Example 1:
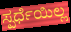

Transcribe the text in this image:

ಸ್ಪರ್ಧೆಯಿಲ್ಲ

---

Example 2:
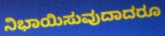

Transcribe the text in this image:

ನಿಭಾಯಿಸುವುದಾದರೂ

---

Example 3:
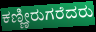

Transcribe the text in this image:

ಕಣ್ಣೀರುಗರೆದರು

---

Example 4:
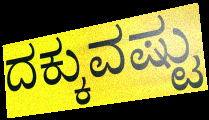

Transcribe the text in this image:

ದಕ್ಕುವಷ್ಟು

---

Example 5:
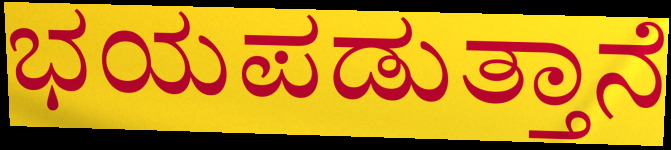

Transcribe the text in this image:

ಭಯಪಡುತ್ತಾನೆ